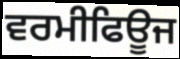
ਵਰਮੀਫਿਊਜ